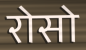
रोसो